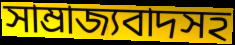
সাম্রাজ্যবাদসহ